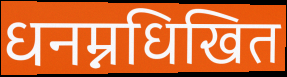
धनम्नधिखित